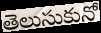
తెలుసుకునో